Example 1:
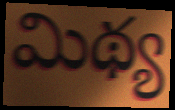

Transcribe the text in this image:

మిథ్య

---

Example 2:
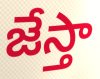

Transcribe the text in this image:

జేస్తా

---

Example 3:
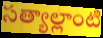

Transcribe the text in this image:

సత్యాల్లాంటి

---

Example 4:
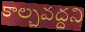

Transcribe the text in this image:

కాల్చవద్దని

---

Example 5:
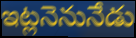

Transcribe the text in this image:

ఇట్లనెనునేడు